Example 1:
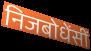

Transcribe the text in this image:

निजबोधेंसीं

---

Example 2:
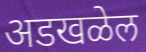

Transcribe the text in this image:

अडखळेल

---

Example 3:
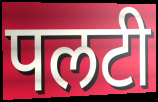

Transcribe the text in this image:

पलटी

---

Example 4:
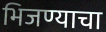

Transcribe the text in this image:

भिजण्याचा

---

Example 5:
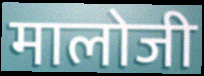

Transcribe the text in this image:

मालोजी